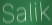
Salik